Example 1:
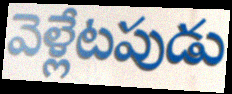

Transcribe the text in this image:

వెళ్లేటపుడు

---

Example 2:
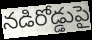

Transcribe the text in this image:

నడిరోడ్డుపై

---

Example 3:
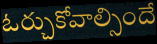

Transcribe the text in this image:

ఓర్చుకోవాల్సిందే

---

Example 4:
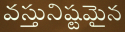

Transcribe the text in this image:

వస్తునిష్టమైన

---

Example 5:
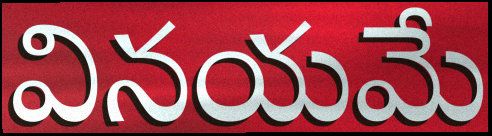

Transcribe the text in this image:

వినయమే